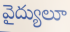
వైద్యులూ